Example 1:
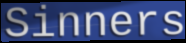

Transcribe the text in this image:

Sinners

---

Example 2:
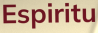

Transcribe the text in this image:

Espiritu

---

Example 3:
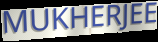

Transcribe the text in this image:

MUKHERJEE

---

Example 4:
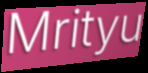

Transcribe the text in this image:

Mrityu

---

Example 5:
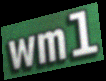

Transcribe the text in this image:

wml